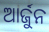
ଆର୍ଜୁନ